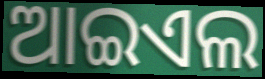
ଆଇଏଲ